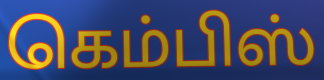
கெம்பிஸ்